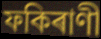
ফকিৰাণী